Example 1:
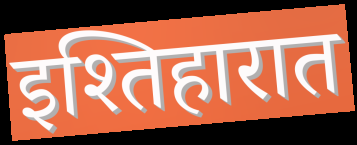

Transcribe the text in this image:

इश्तिहारात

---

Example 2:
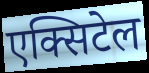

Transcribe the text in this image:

एक्सिटेल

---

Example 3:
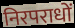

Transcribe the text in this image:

निरपराधों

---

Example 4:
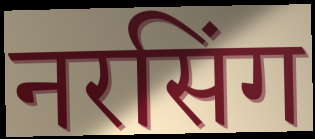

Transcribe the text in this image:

नरसिंग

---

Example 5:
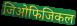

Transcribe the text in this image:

जिओफिजिकल